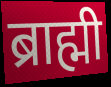
ब्राह्मी